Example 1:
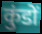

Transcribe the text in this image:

कुंडों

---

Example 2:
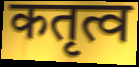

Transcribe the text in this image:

कतृत्व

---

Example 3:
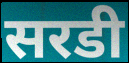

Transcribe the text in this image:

सरडी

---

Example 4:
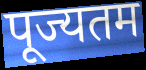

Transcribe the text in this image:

पूज्यतम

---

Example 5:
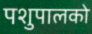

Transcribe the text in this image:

पशुपालको